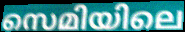
സെമിയിലെ